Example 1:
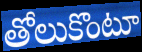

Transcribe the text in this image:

తోలుకొంటూ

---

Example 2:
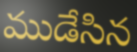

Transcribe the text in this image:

ముడేసిన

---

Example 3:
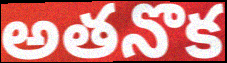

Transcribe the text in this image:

అతనొక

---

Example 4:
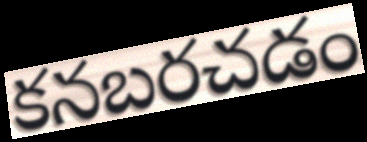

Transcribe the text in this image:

కనబరచడం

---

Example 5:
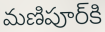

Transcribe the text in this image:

మణిపూర్‌కి